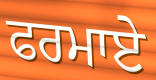
ਫਰਮਾਏ